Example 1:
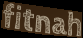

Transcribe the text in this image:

fitnah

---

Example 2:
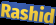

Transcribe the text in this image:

Rashid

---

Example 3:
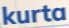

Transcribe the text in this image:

kurta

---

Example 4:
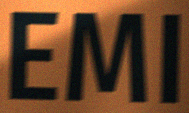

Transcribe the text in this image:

EMI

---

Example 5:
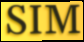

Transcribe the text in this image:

SIM